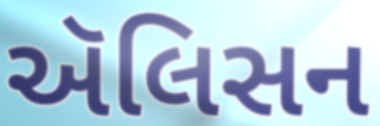
ઍલિસન